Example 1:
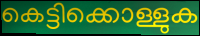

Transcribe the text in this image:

കെട്ടിക്കൊള്ളുക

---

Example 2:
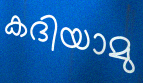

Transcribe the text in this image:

കദിയാമു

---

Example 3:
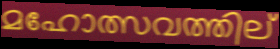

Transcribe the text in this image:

മഹോത്സവത്തില്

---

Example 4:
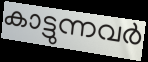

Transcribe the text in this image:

കാട്ടുന്നവർ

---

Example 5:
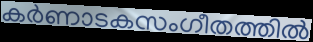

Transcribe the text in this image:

കർണാടകസംഗീതത്തിൽ